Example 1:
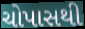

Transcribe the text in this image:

ચોપાસથી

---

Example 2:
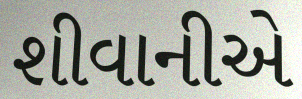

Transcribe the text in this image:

શીવાનીએ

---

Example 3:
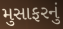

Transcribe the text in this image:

મુસાફરનું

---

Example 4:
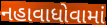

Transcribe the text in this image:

નહાવાધોવામાં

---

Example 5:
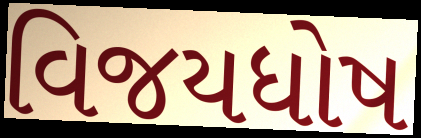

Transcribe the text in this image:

વિજયધોષ